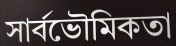
সার্বভৌমিকতা